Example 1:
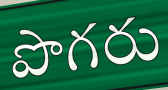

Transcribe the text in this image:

పొగరు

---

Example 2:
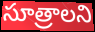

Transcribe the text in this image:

సూత్రాలని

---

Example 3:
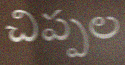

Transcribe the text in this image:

చిప్పల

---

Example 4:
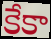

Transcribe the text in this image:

కేకా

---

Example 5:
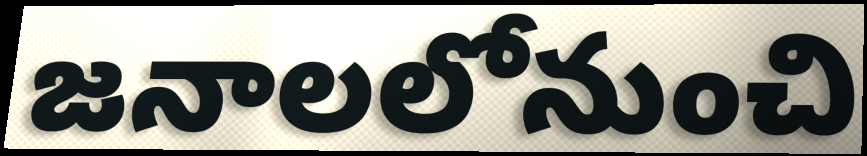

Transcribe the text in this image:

జనాలలోనుంచి